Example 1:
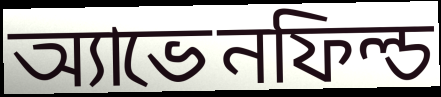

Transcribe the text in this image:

অ্যাভেনফিল্ড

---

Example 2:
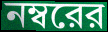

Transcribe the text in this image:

নম্বরের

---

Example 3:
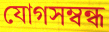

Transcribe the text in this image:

যোগসম্বন্ধ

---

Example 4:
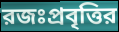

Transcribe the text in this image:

রজঃপ্রবৃত্তির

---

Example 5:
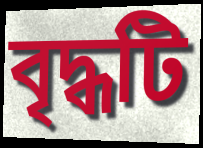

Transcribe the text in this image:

বৃদ্ধটি